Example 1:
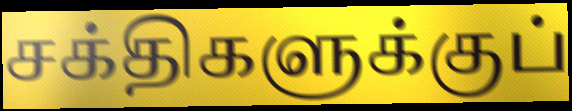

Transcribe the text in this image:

சக்திகளுக்குப்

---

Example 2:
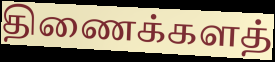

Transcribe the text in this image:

திணைக்களத்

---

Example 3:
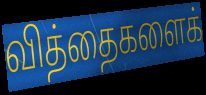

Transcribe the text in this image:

வித்தைகளைக்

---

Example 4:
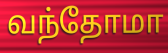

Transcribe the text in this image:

வந்தோமா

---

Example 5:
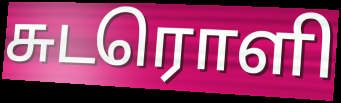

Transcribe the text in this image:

சுடரொளி